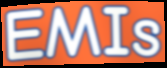
EMIs